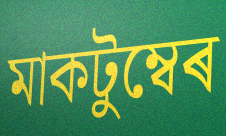
মাকটুম্বেৰ